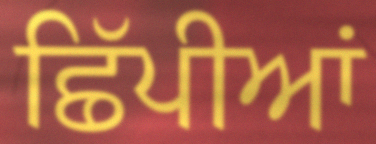
ਛਿੱਪੀਆਂ